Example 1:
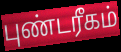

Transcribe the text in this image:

புண்டரீகம்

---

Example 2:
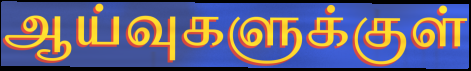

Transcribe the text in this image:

ஆய்வுகளுக்குள்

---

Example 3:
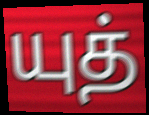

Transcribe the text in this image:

யுத்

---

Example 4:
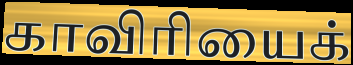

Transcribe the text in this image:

காவிரியைக்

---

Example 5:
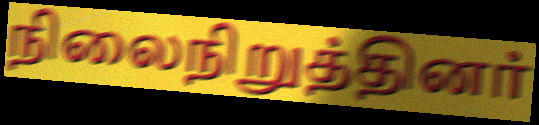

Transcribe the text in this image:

நிலைநிறுத்தினர்